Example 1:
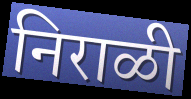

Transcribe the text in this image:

निराळी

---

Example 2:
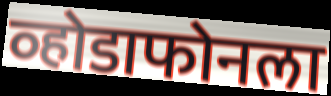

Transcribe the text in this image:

व्होडाफोनला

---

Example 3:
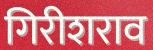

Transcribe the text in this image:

गिरीशराव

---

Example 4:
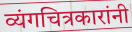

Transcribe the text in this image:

व्यंगचित्रकारांनी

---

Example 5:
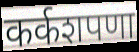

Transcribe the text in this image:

कर्कशपणा